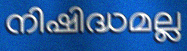
നിഷിദ്ധമല്ല